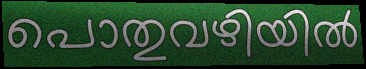
പൊതുവഴിയിൽ